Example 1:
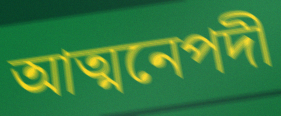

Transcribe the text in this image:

আত্মনেপদী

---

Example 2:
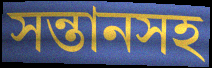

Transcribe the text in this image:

সন্তানসহ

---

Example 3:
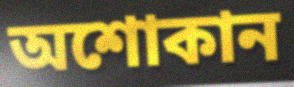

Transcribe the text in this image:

অশোকান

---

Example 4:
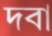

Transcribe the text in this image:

দবা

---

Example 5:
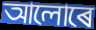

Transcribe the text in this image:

আলোৰে